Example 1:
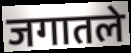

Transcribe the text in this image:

जगातले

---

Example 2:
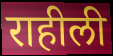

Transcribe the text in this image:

राहीली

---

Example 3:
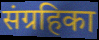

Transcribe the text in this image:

संग्रहिका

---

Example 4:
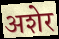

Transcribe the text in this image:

अशेर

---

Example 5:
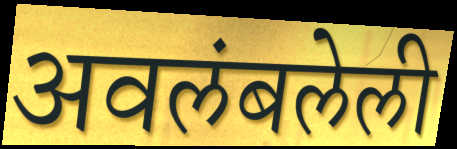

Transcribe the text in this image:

अवलंबलेली